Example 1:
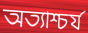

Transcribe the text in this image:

অত্যাশ্চর্য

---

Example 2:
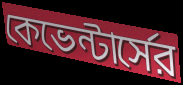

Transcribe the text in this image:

কেভেন্টার্সের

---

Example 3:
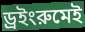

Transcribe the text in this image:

ড্রইংরুমেই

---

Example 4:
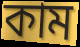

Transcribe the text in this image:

কাম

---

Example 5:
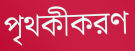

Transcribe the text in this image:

পৃথকীকরণ